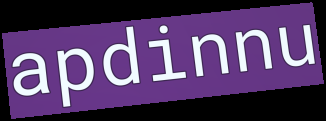
apdinnu